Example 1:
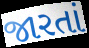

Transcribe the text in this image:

જારતાં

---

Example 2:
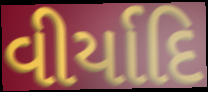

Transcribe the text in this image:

વીર્યાદિ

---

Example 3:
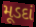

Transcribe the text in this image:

મૂડદાં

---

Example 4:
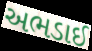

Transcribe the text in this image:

અભડાઈ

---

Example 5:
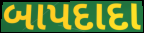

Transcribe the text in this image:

બાપદાદા